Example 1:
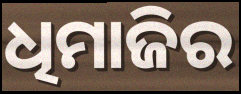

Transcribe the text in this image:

ଧିମାଜିର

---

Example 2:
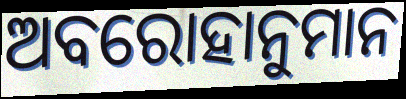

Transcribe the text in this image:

ଅବରୋହାନୁମାନ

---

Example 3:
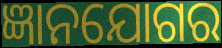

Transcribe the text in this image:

ଜ୍ଞାନଯୋଗର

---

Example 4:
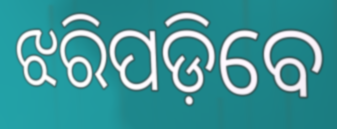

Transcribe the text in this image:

ଝରିପଡ଼ିବେ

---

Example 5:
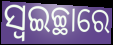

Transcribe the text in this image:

ସ୍ଵଇଚ୍ଛାରେ